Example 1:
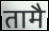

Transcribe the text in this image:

तामै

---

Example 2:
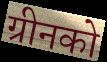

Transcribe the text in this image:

ग्रीनको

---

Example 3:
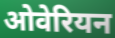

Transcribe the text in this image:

ओवेरियन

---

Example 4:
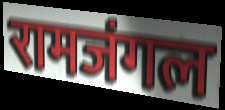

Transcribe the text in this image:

रामजंगल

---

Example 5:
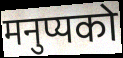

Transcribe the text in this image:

मनुप्यको